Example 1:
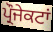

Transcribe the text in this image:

ਪ੍ਰੌਜੇਕਟਾਂ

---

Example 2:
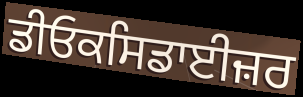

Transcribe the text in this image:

ਡੀਓਕਸਿਡਾਈਜ਼ਰ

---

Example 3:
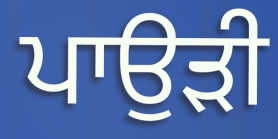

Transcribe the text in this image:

ਪਾਉੜੀ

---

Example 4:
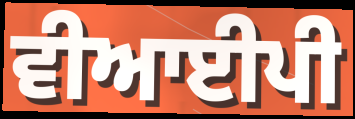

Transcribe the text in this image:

ਵੀਆਈਪੀ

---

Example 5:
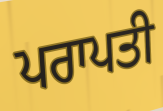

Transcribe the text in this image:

ਪਰਾਪਤੀ